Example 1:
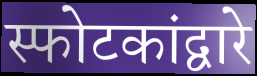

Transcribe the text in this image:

स्फोटकांद्वारे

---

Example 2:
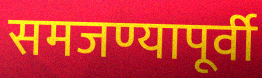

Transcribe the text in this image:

समजण्यापूर्वी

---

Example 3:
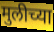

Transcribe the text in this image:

मुलीच्‍या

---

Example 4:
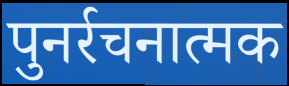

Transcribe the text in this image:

पुनर्रचनात्मक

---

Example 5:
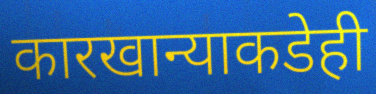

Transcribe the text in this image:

कारखान्याकडेही